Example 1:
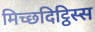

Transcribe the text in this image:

मिच्छदिट्ठिस्स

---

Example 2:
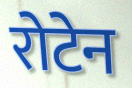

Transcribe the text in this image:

रोटेन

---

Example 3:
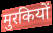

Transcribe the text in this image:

मुरकियों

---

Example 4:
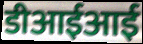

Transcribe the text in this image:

डीआईआई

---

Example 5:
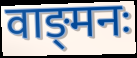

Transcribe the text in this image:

वाङ्मनः